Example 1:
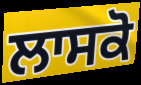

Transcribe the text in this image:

ਲਾਸਕੋ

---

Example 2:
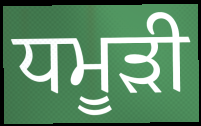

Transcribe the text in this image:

ਧਮੂੜੀ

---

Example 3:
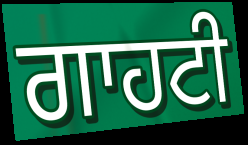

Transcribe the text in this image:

ਗਾਹਟੀ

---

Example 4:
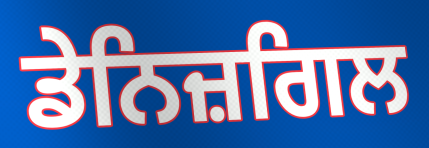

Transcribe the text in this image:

ਡੇਨਿਜ਼ਗਿਲ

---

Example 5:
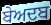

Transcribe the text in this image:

ਬੇਅਦਬ